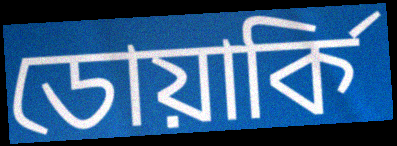
ডোয়ার্কি